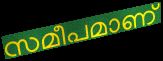
സമീപമാണ്